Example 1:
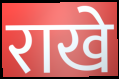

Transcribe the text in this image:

राखे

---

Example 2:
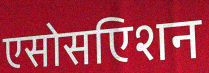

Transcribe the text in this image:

एसोसएिशन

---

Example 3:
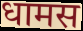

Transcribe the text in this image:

धामस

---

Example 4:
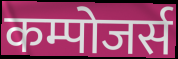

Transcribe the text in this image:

कम्पोजर्स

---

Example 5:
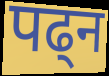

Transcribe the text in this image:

पढ्न